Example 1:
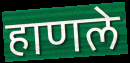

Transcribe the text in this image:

हाणले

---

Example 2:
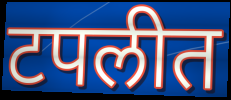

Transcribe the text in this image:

टपलीत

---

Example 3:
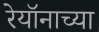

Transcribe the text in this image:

रेयॉनाच्या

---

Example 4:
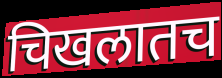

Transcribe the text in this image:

चिखलातच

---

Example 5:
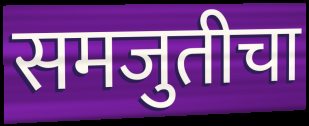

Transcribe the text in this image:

समजुतीचा